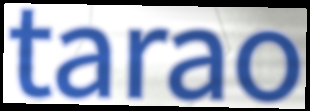
tarao